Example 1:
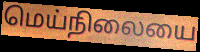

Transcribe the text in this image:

மெய்நிலையை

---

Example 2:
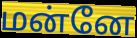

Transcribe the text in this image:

மன்னே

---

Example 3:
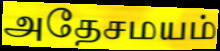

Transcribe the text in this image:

அதேசமயம்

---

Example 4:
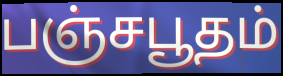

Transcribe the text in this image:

பஞ்சபூதம்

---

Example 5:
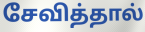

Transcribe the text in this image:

சேவித்தால்